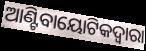
ଆଣ୍ଟିବାୟୋଟିକଦ୍ୱାରା